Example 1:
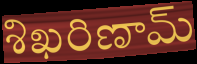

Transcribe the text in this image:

శిఖరిణామ్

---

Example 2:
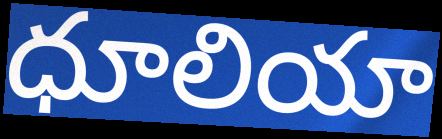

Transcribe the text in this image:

ధూలియా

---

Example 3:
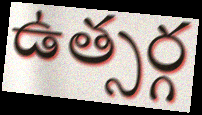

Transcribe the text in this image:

ఉత్సర్గ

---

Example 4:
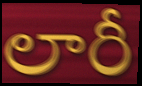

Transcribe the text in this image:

లారీ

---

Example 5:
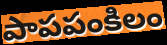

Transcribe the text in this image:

పాపపంకిలం